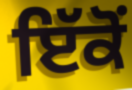
ਇੱਕੋਂ